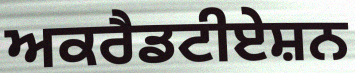
ਅਕਰੈਡਟੀਏਸ਼ਨ